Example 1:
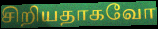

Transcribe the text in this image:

சிறியதாகவோ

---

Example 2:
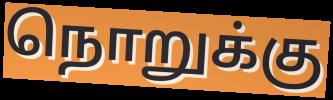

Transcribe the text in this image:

நொறுக்கு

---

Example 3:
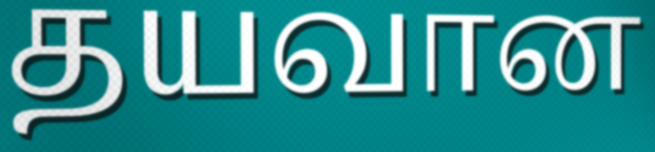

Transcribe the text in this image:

தயவான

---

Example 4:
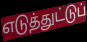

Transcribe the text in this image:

எடுத்துட்டுப்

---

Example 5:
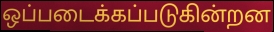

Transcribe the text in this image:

ஒப்படைக்கப்படுகின்றன